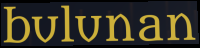
bulunan